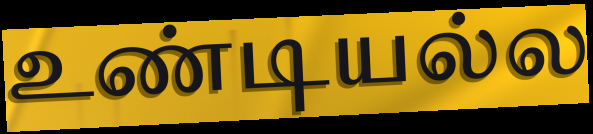
உண்டியல்ல